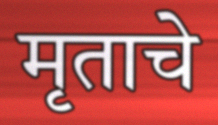
मृताचे